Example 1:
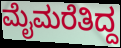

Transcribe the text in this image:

ಮೈಮರೆತಿದ್ದ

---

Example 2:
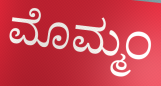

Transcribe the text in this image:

ಮೊಮ್ಮಂ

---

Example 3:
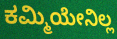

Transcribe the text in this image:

ಕಮ್ಮಿಯೇನಿಲ್ಲ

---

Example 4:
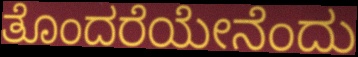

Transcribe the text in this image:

ತೊಂದರೆಯೇನೆಂದು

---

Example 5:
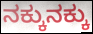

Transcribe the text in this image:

ನಕ್ಕುನಕ್ಕು